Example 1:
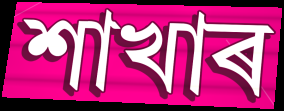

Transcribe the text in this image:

শাখাৰ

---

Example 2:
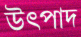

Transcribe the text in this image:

উৎপাদ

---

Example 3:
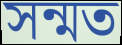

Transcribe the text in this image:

সন্মত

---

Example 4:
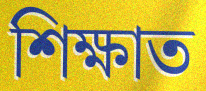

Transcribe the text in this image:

শিক্ষাত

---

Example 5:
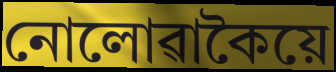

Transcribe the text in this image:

নোলোৱাকৈয়ে